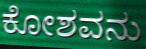
ಕೋಶವನು